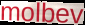
molbev